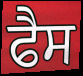
ਫੈਸ